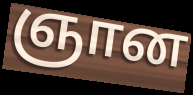
ஞான